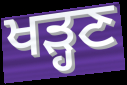
ਖੜ੍ਹਣ